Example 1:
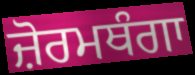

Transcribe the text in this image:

ਜ਼ੋਰਮਥੰਗਾ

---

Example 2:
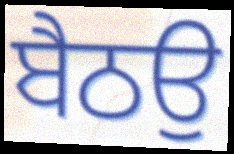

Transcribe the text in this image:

ਬੈਠਉ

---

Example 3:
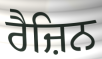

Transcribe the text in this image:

ਰੈਜ਼ਿਨ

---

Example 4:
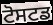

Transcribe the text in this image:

ਟੋਸਟਡ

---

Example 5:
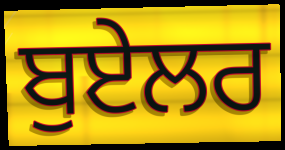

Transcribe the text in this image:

ਬੁਏਲਰ